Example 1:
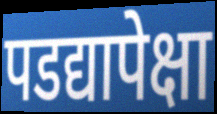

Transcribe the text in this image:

पडद्यापेक्षा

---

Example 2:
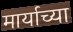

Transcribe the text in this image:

मार्याच्या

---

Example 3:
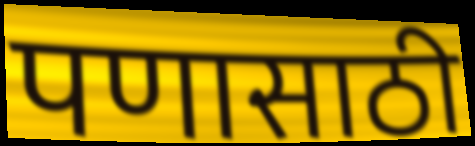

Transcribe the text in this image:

पणासाठी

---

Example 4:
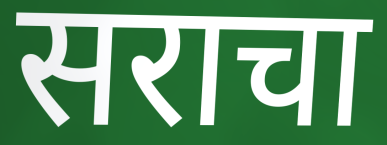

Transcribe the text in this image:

सराचा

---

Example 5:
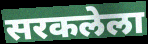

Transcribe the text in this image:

सरकलेला